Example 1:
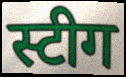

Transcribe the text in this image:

स्टीग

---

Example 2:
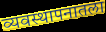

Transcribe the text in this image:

व्यवस्थापनातला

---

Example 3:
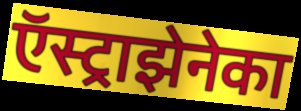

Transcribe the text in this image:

ऍस्ट्राझेनेका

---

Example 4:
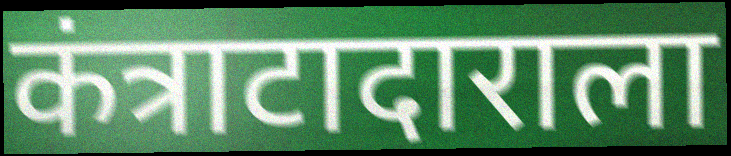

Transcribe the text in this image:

कंत्राटादाराला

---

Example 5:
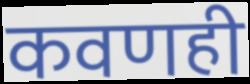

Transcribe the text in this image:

कवणही